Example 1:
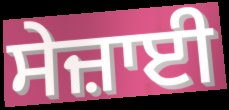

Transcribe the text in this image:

ਸੇਜ਼ਾਈ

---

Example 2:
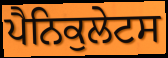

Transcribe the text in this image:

ਪੈਨਿਕੁਲੇਟਸ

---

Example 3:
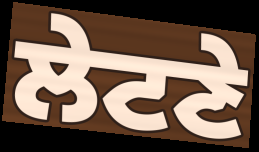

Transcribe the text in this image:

ਲੇਟਣੇ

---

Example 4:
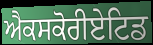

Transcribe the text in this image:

ਐਕਸਕੋਰੀਏਟਿਡ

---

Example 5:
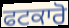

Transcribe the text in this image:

ਫਟਕਾਰੋ